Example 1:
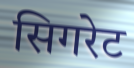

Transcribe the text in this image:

सिगरेट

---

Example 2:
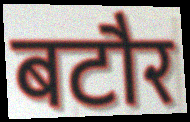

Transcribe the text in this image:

बटौर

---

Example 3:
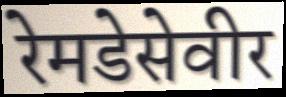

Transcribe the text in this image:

रेमडेसेवीर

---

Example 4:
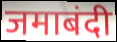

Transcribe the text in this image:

जमाबंदी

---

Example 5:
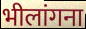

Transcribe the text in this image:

भीलांगना